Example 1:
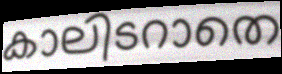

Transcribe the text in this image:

കാലിടറാതെ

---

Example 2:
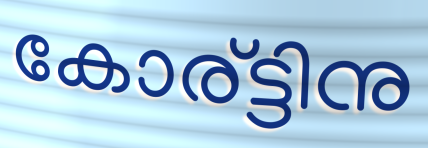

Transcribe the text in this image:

കോര്ട്ടിനു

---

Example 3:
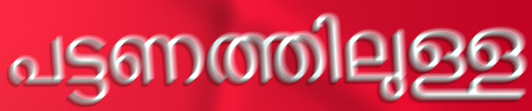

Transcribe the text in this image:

പട്ടണത്തിലുള്ള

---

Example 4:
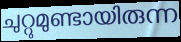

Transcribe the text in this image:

ചുറ്റുമുണ്ടായിരുന്ന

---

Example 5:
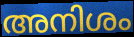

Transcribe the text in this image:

അനിശം